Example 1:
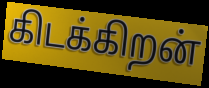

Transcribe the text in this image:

கிடக்கிறன்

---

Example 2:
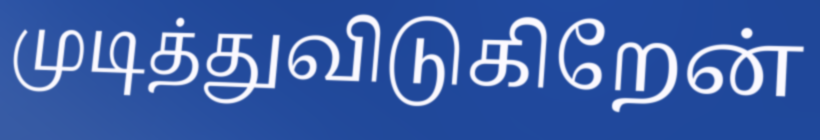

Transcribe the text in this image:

முடித்துவிடுகிறேன்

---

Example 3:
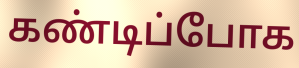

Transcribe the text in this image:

கண்டிப்போக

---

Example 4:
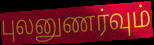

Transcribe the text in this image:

புலனுணர்வும்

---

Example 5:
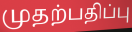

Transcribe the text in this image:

முதற்பதிப்பு